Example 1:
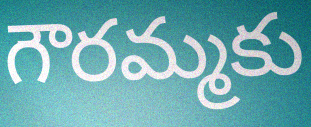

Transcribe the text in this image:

గౌరమ్మకు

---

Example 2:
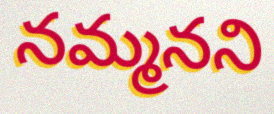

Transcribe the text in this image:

నమ్మనని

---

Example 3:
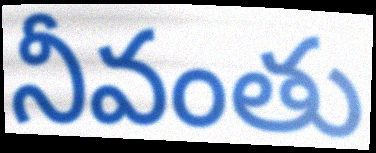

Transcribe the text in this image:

నీవంతు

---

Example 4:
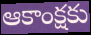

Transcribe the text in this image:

ఆకాంక్షకు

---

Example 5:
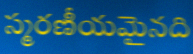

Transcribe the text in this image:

స్మరణీయమైనది